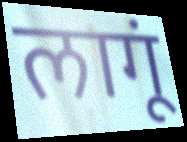
लागूं